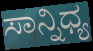
ಸಾನ್ನಿಧ್ಯ